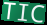
TIC